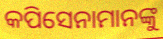
କପିସେନାମାନଙ୍କୁ